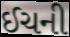
ઈચની